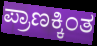
ಪ್ರಾಣಕ್ಕಿಂತ